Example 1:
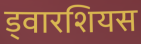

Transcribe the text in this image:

ड्वारशियस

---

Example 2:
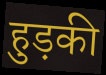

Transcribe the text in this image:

हुड़की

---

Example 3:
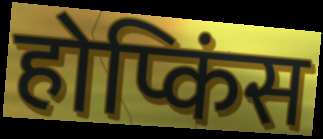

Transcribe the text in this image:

होप्किंस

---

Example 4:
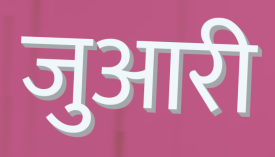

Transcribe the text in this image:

जुआरी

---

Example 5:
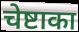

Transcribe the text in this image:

चेष्टाका